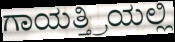
ಗಾಯತ್ತ್ರಿಯಲ್ಲಿ